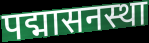
पद्मासनस्था